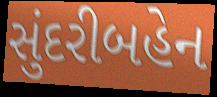
સુંદરીબહેન